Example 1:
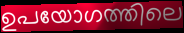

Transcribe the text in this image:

ഉപയോഗത്തിലെ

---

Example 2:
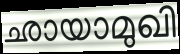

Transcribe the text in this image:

ഛായാമുഖി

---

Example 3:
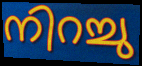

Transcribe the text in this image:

നിറച്ചു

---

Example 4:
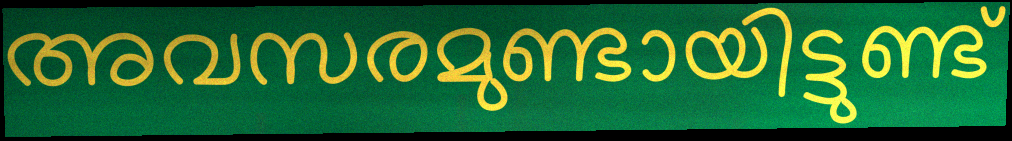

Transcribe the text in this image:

അവസരമുണ്ടായിട്ടുണ്ട്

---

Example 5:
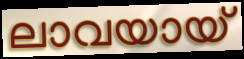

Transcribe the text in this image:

ലാവയായ്